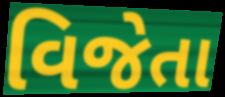
વિજેતા